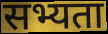
सभ्यता